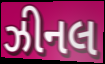
ઝીનલ